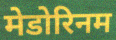
मेडोरिनम